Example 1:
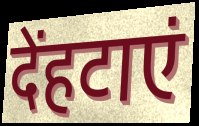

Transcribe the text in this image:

देंहटाएं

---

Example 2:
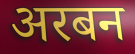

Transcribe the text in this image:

अरबन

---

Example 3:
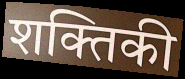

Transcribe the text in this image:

शक्तिकी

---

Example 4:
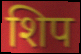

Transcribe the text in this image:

शिप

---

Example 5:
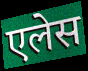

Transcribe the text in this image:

एलेस